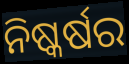
ନିଷ୍କର୍ଷର